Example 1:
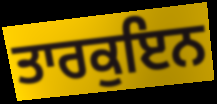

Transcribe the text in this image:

ਤਾਰਕੁਇਨ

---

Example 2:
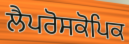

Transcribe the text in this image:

ਲੈਪਰੋਸਕੋਪਿਕ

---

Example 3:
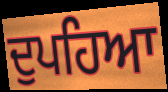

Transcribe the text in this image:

ਦੁਪਹਿਆ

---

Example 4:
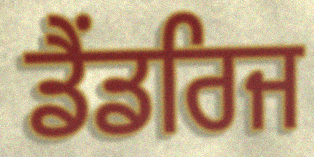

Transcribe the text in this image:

ਡੈਂਡਰਿਜ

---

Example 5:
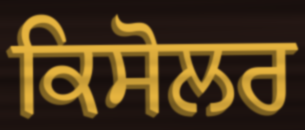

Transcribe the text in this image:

ਕਿਸੋਲਰ